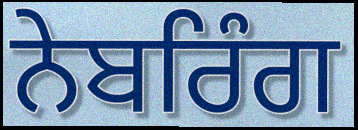
ਨੇਬਰਿੰਗ